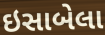
ઇસાબેલા